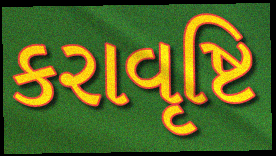
કરાવૃષ્ટિ